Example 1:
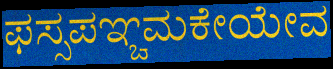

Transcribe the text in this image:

ಫಸ್ಸಪಞ್ಚಮಕೇಯೇವ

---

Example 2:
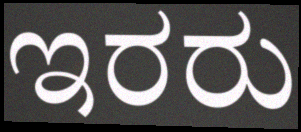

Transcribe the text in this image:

ಇರರು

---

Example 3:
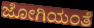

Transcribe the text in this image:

ಜೋಗಿಯಂತೆ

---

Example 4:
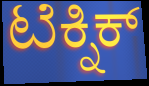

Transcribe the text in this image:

ಟೆಕ್ನಿಕ್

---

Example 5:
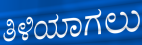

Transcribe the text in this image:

ತಿಳಿಯಾಗಲು